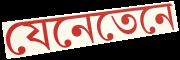
যেনেতেনে